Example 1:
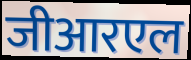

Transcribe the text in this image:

जीआरएल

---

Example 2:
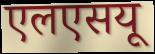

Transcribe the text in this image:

एलएसयू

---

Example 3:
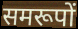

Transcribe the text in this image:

समरूपों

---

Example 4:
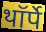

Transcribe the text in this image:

थॉर्पे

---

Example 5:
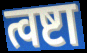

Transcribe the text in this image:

त्वष्टा